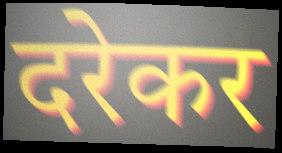
दरेकर